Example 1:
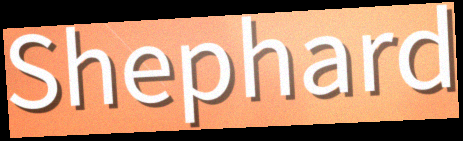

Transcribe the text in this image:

Shephard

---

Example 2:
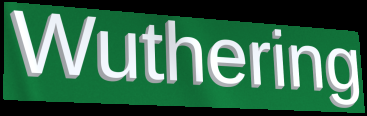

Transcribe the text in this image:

Wuthering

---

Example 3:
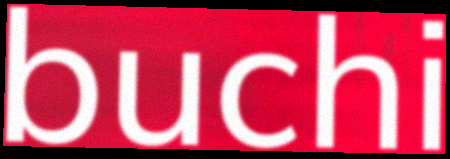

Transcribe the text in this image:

buchi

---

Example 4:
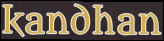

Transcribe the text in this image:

kandhan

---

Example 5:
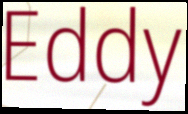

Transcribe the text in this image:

Eddy